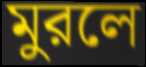
মুরলে